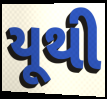
યૂથી